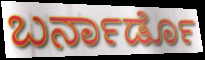
ಬರ್ನಾರ್ಡೊ